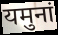
यमुनां